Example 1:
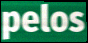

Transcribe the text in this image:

pelos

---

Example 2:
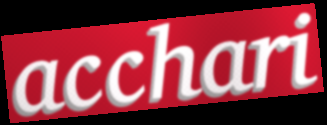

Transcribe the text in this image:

acchari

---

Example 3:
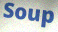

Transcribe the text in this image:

Soup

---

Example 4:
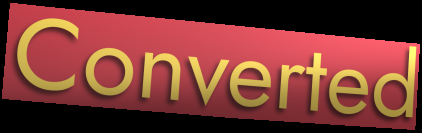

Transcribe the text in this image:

Converted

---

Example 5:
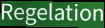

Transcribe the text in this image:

Regelation